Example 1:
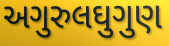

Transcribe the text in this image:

અગુરુલઘુગુણ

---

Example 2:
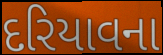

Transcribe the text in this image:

દરિયાવના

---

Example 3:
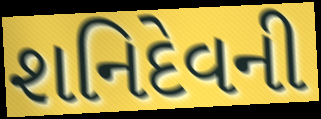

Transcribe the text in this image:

શનિદેવની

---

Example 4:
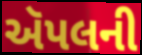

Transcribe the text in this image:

ઍપલની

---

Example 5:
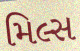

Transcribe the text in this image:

મિલ્સ